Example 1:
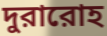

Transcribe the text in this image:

দুরারোহ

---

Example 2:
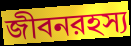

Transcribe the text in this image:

জীবনরহস্য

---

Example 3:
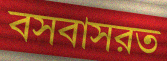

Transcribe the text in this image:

বসবাসরত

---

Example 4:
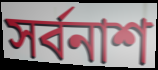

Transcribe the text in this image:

সর্বনাশ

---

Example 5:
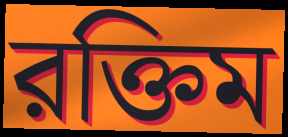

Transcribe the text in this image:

রক্তিম